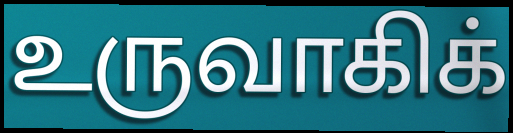
உருவாகிக்